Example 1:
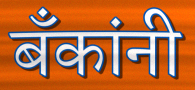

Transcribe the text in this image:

बॅंकांनी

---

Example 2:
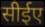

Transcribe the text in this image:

सीईए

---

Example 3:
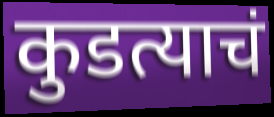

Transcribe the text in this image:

कुडत्याचं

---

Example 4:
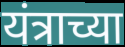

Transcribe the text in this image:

यंत्राच्या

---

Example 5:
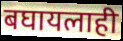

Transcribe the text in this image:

बघायलाही